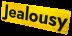
Jealousy